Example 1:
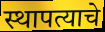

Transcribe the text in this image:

स्थापत्याचे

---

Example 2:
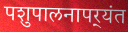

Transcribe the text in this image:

पशुपालनापर्यंत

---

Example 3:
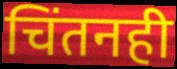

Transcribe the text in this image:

चिंतनही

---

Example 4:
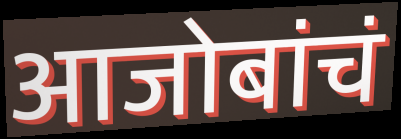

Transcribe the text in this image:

आजोबांचं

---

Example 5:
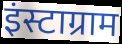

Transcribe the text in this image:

इंस्टाग्राम